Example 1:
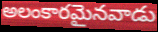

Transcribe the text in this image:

అలంకారమైనవాడు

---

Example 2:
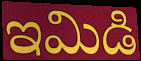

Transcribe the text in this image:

ఇమిడి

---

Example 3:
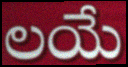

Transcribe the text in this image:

లయే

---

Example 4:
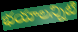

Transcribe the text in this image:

భయాలన్నిటి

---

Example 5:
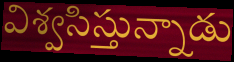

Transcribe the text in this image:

విశ్వసిస్తున్నాడు